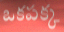
ఒకపక్క